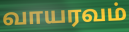
வாயரவம்